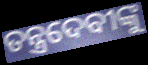
ତନ୍ତ୍ରଦେବୀଙ୍କୁ